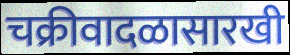
चक्रीवादळासारखी